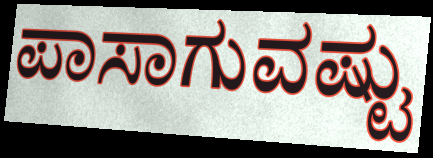
ಪಾಸಾಗುವಷ್ಟು